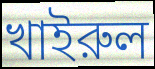
খাইরুল